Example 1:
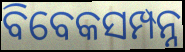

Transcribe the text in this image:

ବିବେକସମ୍ପନ୍ନ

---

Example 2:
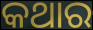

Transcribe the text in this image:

କଥାର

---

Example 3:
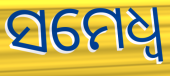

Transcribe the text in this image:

ସମେଧ୍ୱ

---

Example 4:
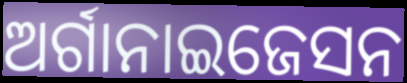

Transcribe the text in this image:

ଅର୍ଗାନାଇଜେସନ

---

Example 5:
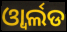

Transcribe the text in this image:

ଓ୍ବାର୍ଲଡ